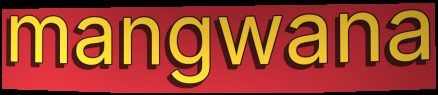
mangwana